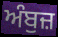
ਅੰਬੁਜ਼